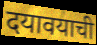
दयावयाची